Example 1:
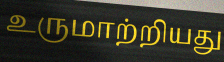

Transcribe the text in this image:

உருமாற்றியது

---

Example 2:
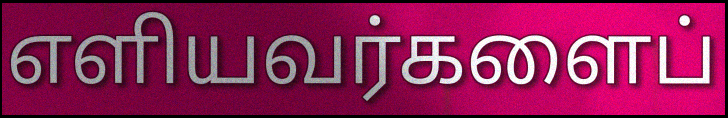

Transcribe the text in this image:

எளியவர்களைப்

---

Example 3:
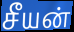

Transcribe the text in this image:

சீயன்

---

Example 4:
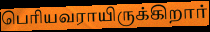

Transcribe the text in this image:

பெரியவராயிருக்கிறார்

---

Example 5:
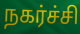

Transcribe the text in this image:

நகர்ச்சி